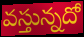
వస్తున్నదో